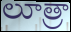
లూత్రా